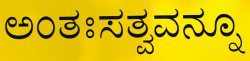
ಅಂತಃಸತ್ವವನ್ನೂ